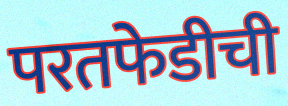
परतफेडीची